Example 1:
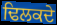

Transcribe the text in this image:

ਢਿਲਕਦੇ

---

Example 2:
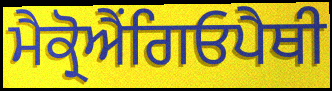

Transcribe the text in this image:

ਮੈਕ੍ਰੋਐਂਗਿਓਪੈਥੀ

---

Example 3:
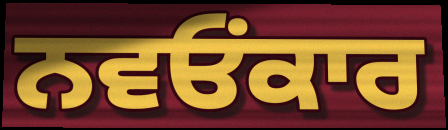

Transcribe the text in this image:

ਨਵਓਂਕਾਰ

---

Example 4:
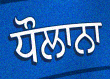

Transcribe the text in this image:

ਧੌਲਾਨਾ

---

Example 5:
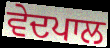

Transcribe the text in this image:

ਵੇਦਪਾਲ